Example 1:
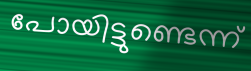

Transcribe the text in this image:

പോയിട്ടുണ്ടെന്ന്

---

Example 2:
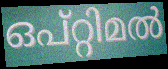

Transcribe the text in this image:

ഒപ്റ്റിമൽ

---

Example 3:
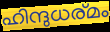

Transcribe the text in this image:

ഹിന്ദുധര്മം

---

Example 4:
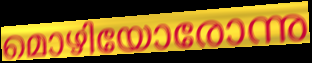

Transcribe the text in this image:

മൊഴിയോരോന്നു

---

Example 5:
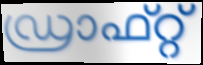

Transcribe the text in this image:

ഡ്രാഫ്റ്റ്